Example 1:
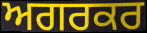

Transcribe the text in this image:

ਅਗਰਕਰ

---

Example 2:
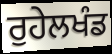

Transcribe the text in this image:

ਰੁਹੇਲਖੰਡ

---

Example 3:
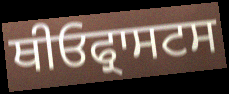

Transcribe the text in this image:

ਥੀਓਫ੍ਰਾਸਟਸ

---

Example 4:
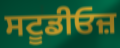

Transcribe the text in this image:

ਸਟੂਡੀਓਜ਼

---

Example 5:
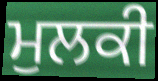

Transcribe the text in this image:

ਮੁਲਕੀ